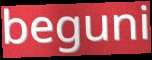
beguni